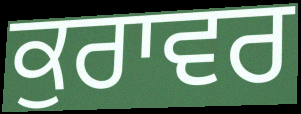
ਕੁਰਾਵਰ